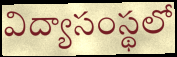
విద్యాసంస్థలో